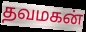
தவமகன்